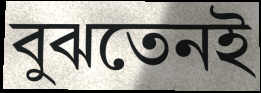
বুঝতেনই